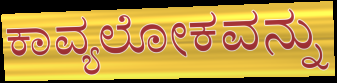
ಕಾವ್ಯಲೋಕವನ್ನು